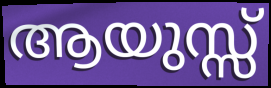
ആയുസ്സ്